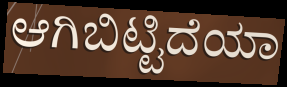
ಆಗಿಬಿಟ್ಟಿದೆಯಾ